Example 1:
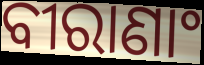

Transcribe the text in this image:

ବୀରାଣାଂ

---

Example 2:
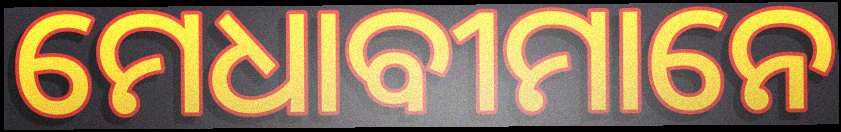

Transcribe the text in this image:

ମେଧାବୀମାନେ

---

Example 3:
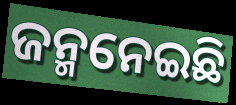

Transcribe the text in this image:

ଜନ୍ମନେଇଛି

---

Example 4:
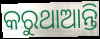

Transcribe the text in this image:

କରୁଥାଆନ୍ତି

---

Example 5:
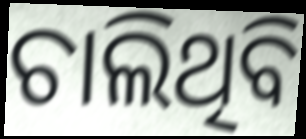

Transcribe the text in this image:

ଚାଲିଥିବି